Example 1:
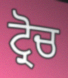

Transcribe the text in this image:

ਟ੍ਰੋਚ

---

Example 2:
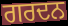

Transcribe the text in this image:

ਗਰਦਨ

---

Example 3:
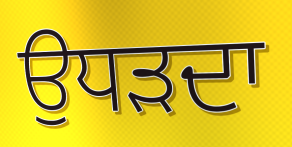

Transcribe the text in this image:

ਉਧੜਦਾ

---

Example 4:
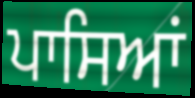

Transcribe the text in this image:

ਪਾਸਿਆਂ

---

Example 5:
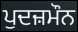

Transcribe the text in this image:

ਪੁਦਜ਼ਮੌਨ